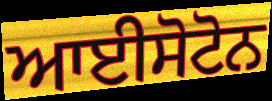
ਆਈਸੋਟੋਨ